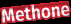
Methone